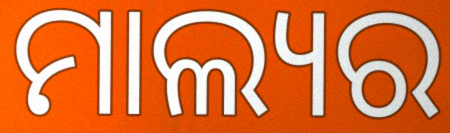
ମାଲ୍ୟର